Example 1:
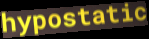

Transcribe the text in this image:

hypostatic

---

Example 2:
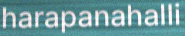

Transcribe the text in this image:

harapanahalli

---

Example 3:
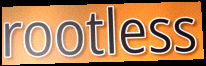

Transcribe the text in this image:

rootless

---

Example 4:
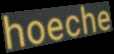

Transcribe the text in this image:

hoeche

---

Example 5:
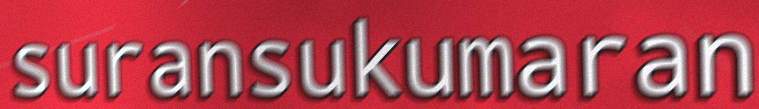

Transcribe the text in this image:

suransukumaran